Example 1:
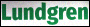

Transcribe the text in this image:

Lundgren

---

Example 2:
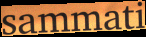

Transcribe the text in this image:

sammati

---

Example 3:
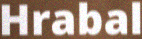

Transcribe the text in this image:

Hrabal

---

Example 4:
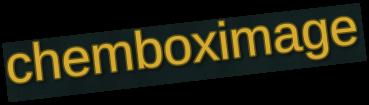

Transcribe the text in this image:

chemboximage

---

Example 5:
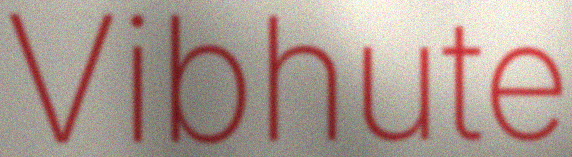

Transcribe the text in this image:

Vibhute